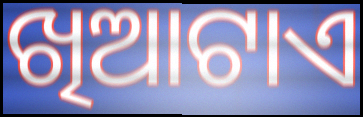
ଖିଆଟାଏ